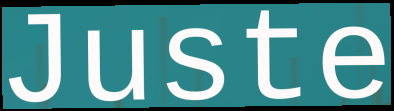
Juste